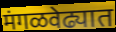
मंगळवेढ्यात